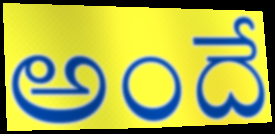
అందే